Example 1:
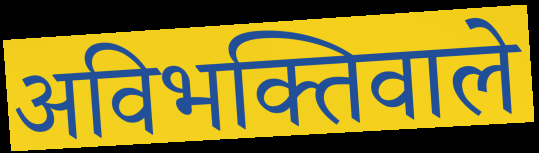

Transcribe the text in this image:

अविभक्तिवाले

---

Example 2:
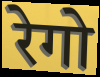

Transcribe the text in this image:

रेगो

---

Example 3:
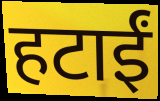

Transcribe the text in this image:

हटाईं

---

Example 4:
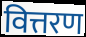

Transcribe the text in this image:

वित्तरण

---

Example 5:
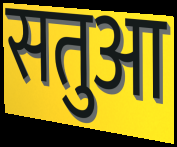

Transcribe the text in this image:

सतुआ